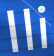
Ili